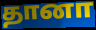
தானா